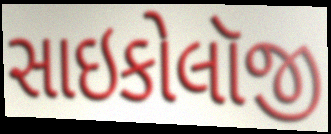
સાઇકોલૉજી